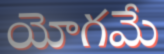
యోగమే